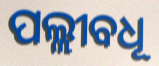
ପଲ୍ଲୀବଧୂ